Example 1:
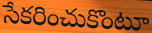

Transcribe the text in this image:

సేకరించుకొంటూ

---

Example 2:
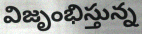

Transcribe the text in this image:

విజృంభిస్తున్న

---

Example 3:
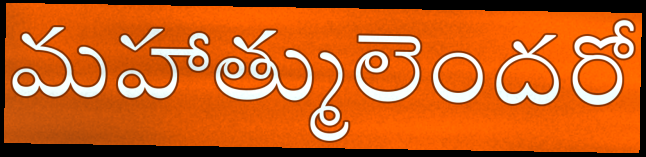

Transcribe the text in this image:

మహాత్ములెందరో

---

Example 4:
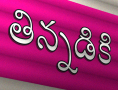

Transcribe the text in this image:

తిన్నడికి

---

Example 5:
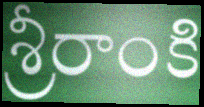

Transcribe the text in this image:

శ్రీరాంకి